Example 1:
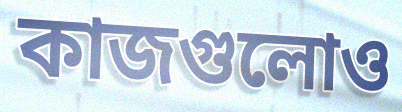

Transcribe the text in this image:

কাজগুলোও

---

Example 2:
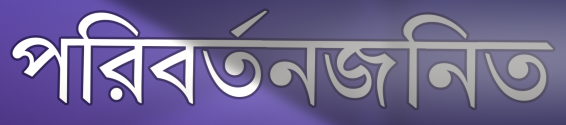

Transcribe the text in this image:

পরিবর্তনজনিত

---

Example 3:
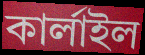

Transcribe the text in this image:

কার্লাইল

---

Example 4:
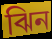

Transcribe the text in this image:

ঝিন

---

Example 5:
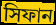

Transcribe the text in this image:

সিফান